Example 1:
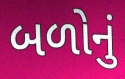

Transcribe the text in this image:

બળોનું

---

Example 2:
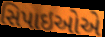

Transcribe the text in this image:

સિપાઇઓએ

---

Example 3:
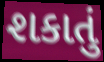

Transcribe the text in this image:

શકાતું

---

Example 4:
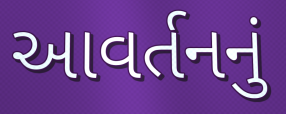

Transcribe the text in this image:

આવર્તનનું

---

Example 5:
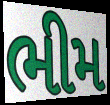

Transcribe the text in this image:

ભીમ